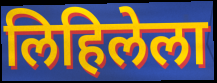
लिहिलेला